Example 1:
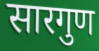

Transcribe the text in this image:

सारगुण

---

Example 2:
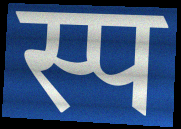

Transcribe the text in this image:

स्प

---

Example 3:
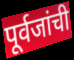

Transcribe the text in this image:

पूर्वजांची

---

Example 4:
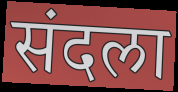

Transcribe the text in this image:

संदला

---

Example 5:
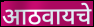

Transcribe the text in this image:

आठवायचे